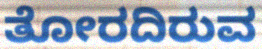
ತೋರದಿರುವ